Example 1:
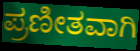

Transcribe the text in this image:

ಪ್ರಣೀತವಾಗಿ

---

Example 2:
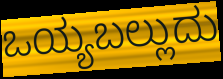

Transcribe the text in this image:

ಒಯ್ಯಬಲ್ಲುದು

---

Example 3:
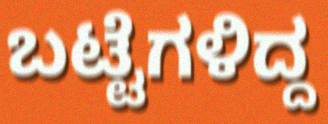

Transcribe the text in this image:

ಬಟ್ಟೆಗಳಿದ್ದ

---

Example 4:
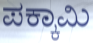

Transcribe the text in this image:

ಪಕ್ಕಾಮಿ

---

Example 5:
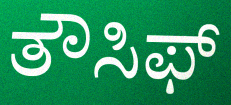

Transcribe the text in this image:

ತೌಸಿಫ್